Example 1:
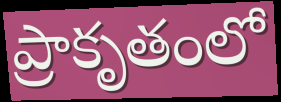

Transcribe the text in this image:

ప్రాకృతంలో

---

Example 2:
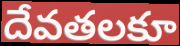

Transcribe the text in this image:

దేవతలకూ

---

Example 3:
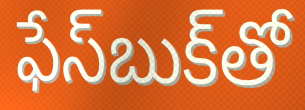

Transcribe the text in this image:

ఫేస్‌బుక్‌తో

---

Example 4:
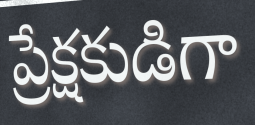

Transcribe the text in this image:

ప్రేక్షకుడిగా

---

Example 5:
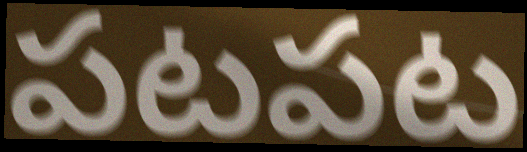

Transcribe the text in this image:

పటపట